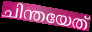
ചിന്തയേത്